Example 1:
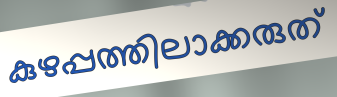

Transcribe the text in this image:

കുഴപ്പത്തിലാക്കരുത്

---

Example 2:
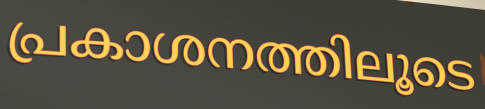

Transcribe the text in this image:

പ്രകാശനത്തിലൂടെ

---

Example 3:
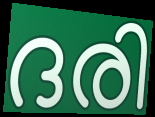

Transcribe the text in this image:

ദരി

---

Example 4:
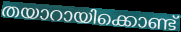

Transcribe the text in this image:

തയാറായിക്കൊണ്ട്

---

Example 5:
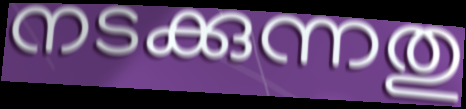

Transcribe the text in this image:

നടക്കുന്നതു